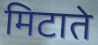
मिटाते